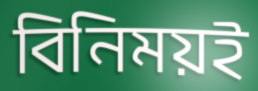
বিনিময়ই